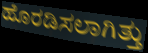
ಹೊರಡಿಸಲಾಗಿತ್ತು